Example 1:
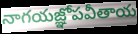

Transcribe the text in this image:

నాగయజ్ఞోపవీతాయ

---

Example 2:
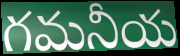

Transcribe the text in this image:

గమనీయ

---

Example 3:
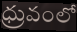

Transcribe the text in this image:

ధ్రువంలో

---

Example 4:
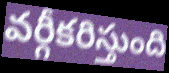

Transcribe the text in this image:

వర్గీకరిస్తుంది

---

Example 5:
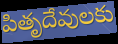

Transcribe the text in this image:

పితృదేవులకు